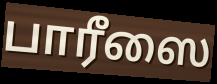
பாரீஸை